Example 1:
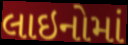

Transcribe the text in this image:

લાઇનોમાં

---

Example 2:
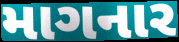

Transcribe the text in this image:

માગનાર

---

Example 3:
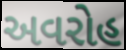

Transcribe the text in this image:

અવરોહ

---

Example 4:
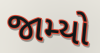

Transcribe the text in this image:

જામ્યો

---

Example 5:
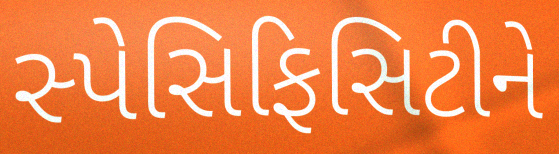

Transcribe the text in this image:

સ્પેસિફિસિટીને